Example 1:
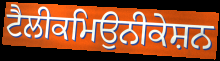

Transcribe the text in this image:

ਟੈਲੀਕਮਿਉਨੀਕੇਸ਼ਨ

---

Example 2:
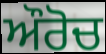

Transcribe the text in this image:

ਔਰੋਚ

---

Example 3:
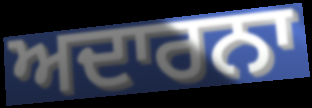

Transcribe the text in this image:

ਅਦਾਰਨਾ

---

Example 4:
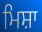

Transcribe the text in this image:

ਮਿਸ਼ਾ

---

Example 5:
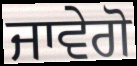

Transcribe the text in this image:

ਜਾਵੇਗੋ